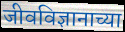
जीवविज्ञानाच्या